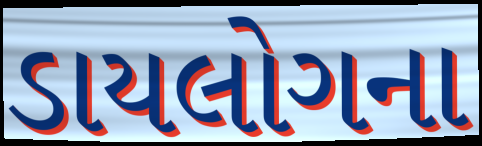
ડાયલોગના